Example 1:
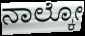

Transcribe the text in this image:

ನಾಲ್ಕೋ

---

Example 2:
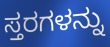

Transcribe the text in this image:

ಸ್ತರಗಳನ್ನು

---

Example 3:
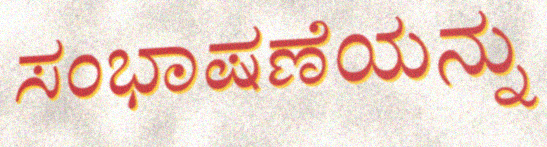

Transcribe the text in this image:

ಸಂಭಾಷಣೆಯನ್ನು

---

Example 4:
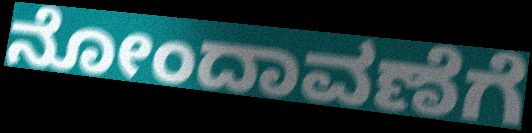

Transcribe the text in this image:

ನೋಂದಾವಣೆಗೆ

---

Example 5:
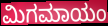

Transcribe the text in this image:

ಮಿಗಮಾಯಂ